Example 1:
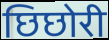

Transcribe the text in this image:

छिछोरी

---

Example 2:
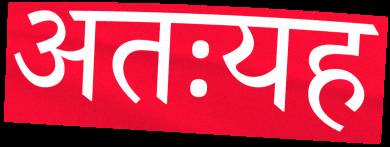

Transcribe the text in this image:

अतःयह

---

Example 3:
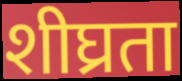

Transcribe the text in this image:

शीघ्रता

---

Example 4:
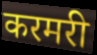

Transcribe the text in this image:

करमरी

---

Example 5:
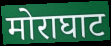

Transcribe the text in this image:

मोराघाट